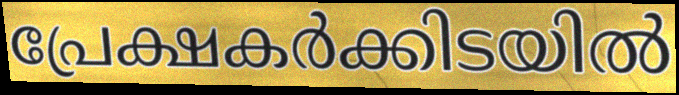
പ്രേക്ഷകർക്കിടയിൽ